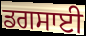
ਡਗਸਾਈ